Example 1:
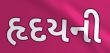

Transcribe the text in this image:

હૃદયની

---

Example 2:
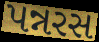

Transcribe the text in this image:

પન્નરસ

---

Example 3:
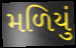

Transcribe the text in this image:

મળિયું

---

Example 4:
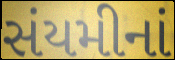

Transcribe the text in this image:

સંયમીનાં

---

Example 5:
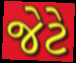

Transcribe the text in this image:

જેટે